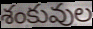
శంకువుల